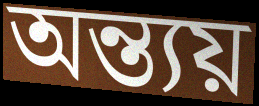
অন্ত্যয়